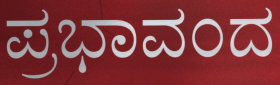
ಪ್ರಭಾವಂದ